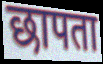
छापता